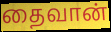
தைவான்